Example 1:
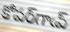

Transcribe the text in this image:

కోపర్‌గాఁవ్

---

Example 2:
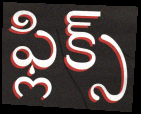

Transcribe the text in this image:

ఫ్లిక్స్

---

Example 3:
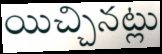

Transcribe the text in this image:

యిచ్చినట్లు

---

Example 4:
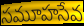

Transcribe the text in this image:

సమూహసేవ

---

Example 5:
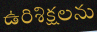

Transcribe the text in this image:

ఉరిశిక్షలను